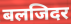
बलजिदर